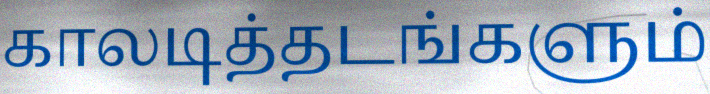
காலடித்தடங்களும்